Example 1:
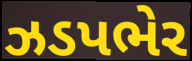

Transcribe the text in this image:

ઝડપભેર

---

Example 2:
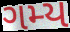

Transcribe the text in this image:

ગમ્ય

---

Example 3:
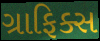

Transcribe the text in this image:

ગ્રાફિક્સ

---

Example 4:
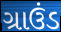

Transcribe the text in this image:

ગ્રાઉંડ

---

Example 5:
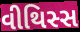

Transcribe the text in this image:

વીથિસ્સ